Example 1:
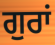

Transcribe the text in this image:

ਗੁਰਾਂ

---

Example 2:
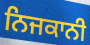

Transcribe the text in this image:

ਨਿਜਕਾਨੀ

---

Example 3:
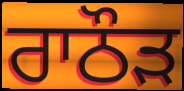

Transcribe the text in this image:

ਰਾਠੌੜ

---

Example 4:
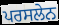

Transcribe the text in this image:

ਪਰਸਲੇਨ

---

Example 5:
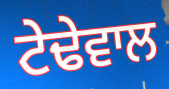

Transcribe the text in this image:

ਟੇਢੇਵਾਲ